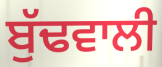
ਬੁੱਢਵਾਲੀ